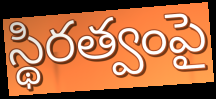
స్థిరత్వంపై